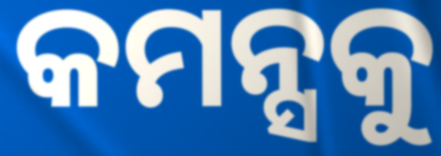
କମନ୍ସକୁ